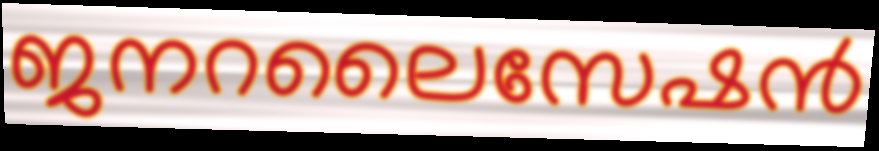
ജനറലൈസേഷൻ